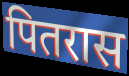
पितरास